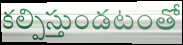
కల్పిస్తుండటంతో